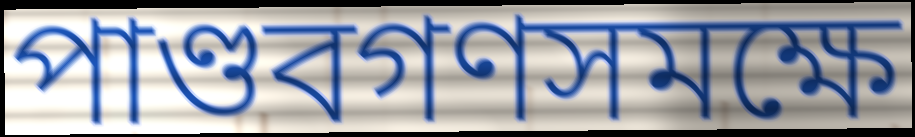
পাণ্ডবগণসমক্ষে